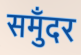
समुँदर